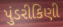
પુંડરીકિણી